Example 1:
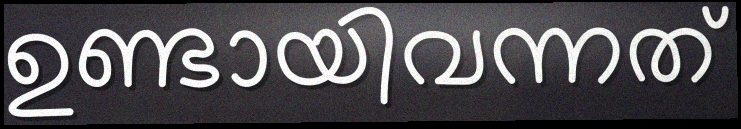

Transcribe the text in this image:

ഉണ്ടായിവന്നത്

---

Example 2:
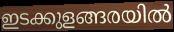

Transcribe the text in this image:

ഇടക്കുളങ്ങരയിൽ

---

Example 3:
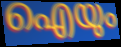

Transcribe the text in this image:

ഐയും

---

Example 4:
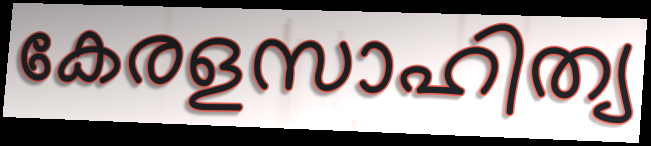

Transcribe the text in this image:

കേരളസാഹിത്യ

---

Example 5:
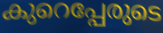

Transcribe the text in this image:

കുറെപ്പേരുടെ